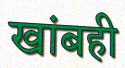
खांबही